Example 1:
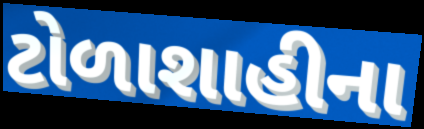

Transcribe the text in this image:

ટોળાશાહીના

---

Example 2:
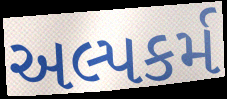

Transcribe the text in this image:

અલ્પકર્મ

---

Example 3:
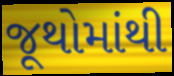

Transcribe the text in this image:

જૂથોમાંથી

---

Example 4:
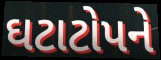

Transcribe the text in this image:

ઘટાટોપને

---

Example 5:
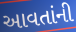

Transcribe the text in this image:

આવતાંની